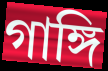
গাঙ্গি